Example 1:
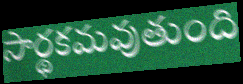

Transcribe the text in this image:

సార్థకమవుతుంది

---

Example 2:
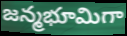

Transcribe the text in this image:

జన్మభూమిగా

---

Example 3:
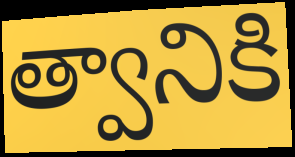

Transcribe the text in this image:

త్వానికి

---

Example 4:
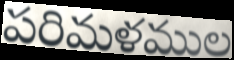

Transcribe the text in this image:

పరిమళముల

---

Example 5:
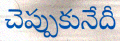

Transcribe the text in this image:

చెప్పుకునేదీ